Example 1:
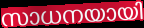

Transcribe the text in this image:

സാധനയായി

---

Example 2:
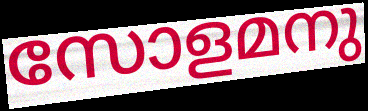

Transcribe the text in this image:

സോളമനു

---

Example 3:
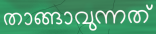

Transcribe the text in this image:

താങ്ങാവുന്നത്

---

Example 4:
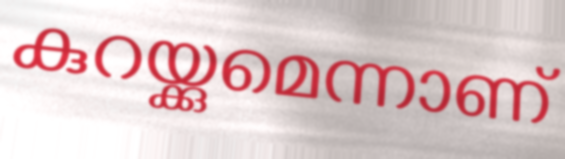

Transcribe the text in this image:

കുറയ്ക്കുമെന്നാണ്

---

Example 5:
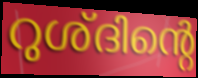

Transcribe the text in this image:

റുശ്ദിന്റെ